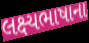
લક્ષ્યભાષાના